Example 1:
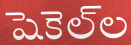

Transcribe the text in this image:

షెకెల్‌ల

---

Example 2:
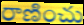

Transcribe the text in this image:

రాణించు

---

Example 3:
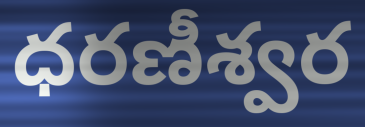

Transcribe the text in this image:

ధరణీశ్వర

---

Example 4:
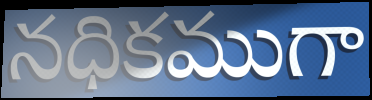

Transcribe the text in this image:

నధికముగా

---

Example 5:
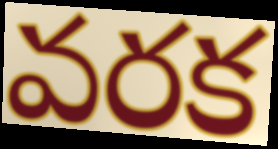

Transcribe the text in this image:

వరక